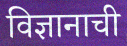
विज्ञानाची